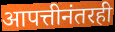
आपत्तीनंतरही